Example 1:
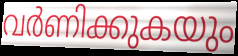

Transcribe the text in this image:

വർണിക്കുകയും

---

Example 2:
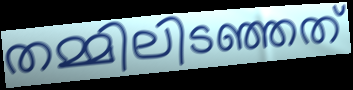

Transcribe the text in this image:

തമ്മിലിടഞ്ഞത്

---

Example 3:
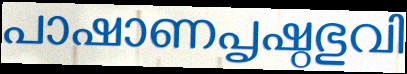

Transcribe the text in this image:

പാഷാണപൃഷ്ഠഭുവി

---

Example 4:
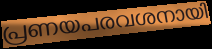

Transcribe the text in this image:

പ്രണയപരവശനായി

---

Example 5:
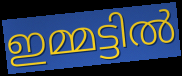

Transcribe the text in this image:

ഇമ്മട്ടിൽ